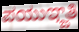
ಪಯುಞ್ಜತಿ